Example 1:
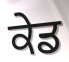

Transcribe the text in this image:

ਕੇਡ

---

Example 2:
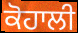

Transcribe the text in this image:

ਕੋਹਾਲੀ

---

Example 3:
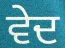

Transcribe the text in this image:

ਵੇਦ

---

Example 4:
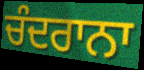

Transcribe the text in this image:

ਚੰਦਰਾਨਾ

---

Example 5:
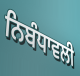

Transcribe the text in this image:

ਨਿਬੰਧਾਵਲੀ